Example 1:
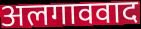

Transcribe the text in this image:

अलगाववाद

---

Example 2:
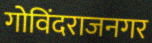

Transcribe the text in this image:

गोविंदराजनगर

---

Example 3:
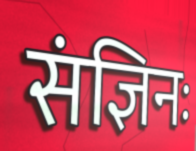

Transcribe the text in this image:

संज्ञिनः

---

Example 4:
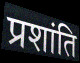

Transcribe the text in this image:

प्रशांति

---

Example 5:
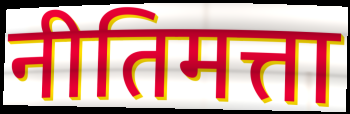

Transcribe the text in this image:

नीतिमत्ता